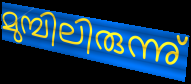
മുമ്പിലിരുന്നു്